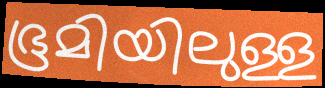
ഭൂമിയിലുള്ള